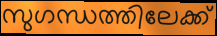
സുഗന്ധത്തിലേക്ക്